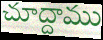
చూద్దాము